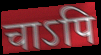
चाऽपि